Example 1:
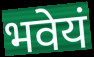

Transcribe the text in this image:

भवेयं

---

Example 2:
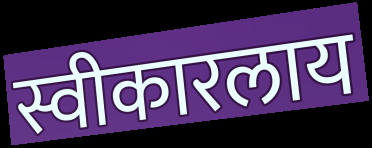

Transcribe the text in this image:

स्वीकारलाय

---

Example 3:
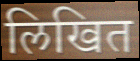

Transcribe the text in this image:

लिखित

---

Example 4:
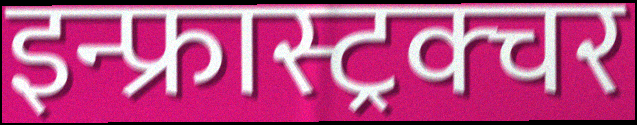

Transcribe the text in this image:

इन्फ्रास्ट्रक्‍चर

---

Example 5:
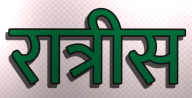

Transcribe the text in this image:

रात्रीस